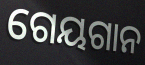
ଗେୟଗାନ